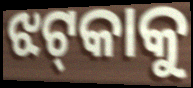
ଝଟ୍‌କାକୁ